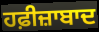
ਹਫ਼ੀਜ਼ਾਬਾਦ